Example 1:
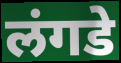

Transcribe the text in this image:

लंगडे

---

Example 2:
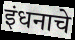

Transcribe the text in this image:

इंधनाचे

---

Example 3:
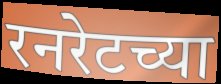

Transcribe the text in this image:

रनरेटच्या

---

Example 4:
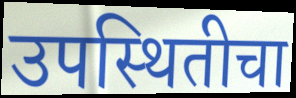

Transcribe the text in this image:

उपस्थितीचा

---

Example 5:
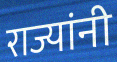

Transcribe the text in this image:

राज्यांनी